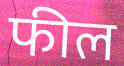
फील